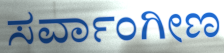
ಸರ್ವಾಂಗೀಣ